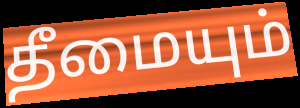
தீமையும்